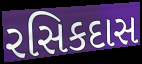
રસિકદાસ